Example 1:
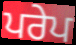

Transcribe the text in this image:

ਪਰੇਪ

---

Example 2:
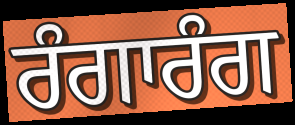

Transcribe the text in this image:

ਰੰਗਾਰੰਗ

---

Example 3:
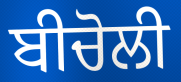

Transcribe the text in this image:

ਬੀਚੋਲੀ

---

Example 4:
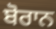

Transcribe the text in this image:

ਬੋਰਾਨ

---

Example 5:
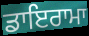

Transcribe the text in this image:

ਡਾਇਰਾਮਾ